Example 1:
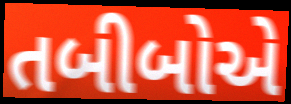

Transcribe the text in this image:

તબીબોએ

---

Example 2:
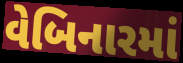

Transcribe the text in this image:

વેબિનારમાં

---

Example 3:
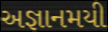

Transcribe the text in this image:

અજ્ઞાનમયી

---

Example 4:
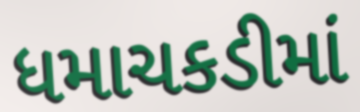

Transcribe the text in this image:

ધમાચકડીમાં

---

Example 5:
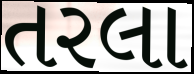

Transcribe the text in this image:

તરલા